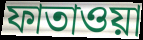
ফাতাওয়া